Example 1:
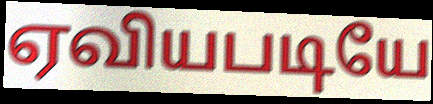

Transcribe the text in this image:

ஏவியபடியே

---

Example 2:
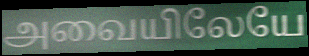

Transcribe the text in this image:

அவையிலேயே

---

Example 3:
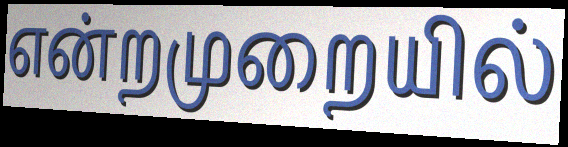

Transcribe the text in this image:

என்றமுறையில்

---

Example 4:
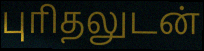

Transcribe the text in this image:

புரிதலுடன்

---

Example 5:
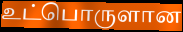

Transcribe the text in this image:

உட்பொருளான